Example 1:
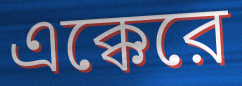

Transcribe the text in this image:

এক্কেরে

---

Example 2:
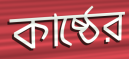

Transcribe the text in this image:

কাষ্ঠের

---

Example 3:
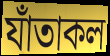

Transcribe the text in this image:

যাঁতাকল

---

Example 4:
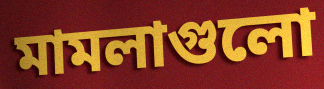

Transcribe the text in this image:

মামলাগুলো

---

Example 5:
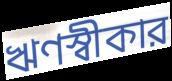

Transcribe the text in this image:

ঋণস্বীকার